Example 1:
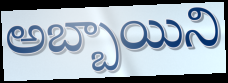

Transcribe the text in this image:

అబ్బాయిని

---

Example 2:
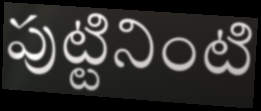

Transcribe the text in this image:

పుట్టినింటి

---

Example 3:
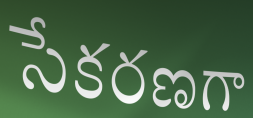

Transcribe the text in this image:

సేకరణగా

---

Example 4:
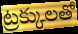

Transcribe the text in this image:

ట్రక్కులతో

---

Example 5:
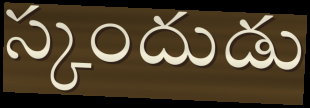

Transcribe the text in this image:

స్కందుడు